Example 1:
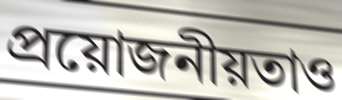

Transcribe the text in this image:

প্রয়োজনীয়তাও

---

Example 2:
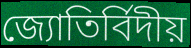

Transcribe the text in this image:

জ্যোতির্বিদীয়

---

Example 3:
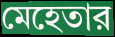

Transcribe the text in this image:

মেহেতার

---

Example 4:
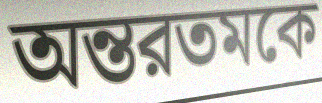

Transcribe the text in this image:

অন্তরতমকে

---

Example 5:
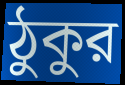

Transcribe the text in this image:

ঠুকুর